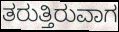
ತರುತ್ತಿರುವಾಗ